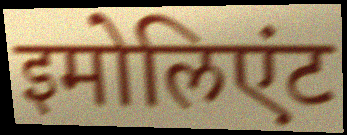
इमोलिएंट